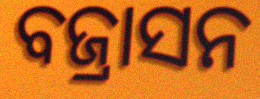
ବଜ୍ରାସନ